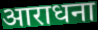
आराधना